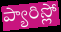
ప్యారిస్లో